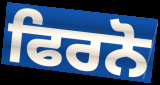
ਫਿਰਨੋ